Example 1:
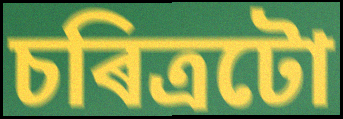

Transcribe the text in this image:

চৰিত্ৰটো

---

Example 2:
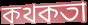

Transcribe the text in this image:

কথকতা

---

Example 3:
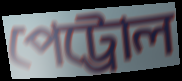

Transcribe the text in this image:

পেট্ৰোল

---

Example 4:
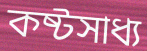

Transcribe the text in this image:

কষ্টসাধ্য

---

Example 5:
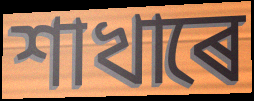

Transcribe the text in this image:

শাখাৰে